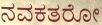
ನವಕತರೋ